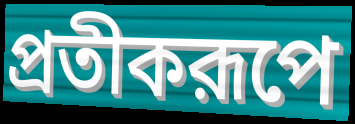
প্রতীকরূপে